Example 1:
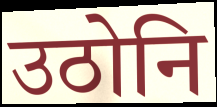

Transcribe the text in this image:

उठोनि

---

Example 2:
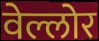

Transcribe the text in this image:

वेल्लोर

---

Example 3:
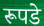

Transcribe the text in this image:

रूपडे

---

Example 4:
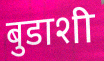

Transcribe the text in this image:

बुडाशी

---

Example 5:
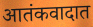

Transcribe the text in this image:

आतंकवादात